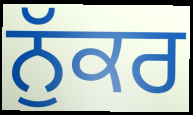
ਨੁੱਕਰ